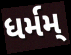
ધર્મમ્